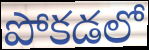
పోకడలో